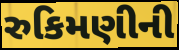
રુકિમણીની